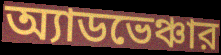
অ্যাডভেঞ্চার